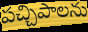
పచ్చిపాలను